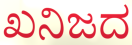
ಖನಿಜದ